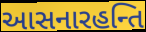
આસનારહન્તિ